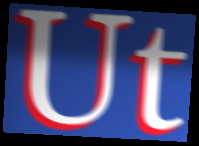
Ut